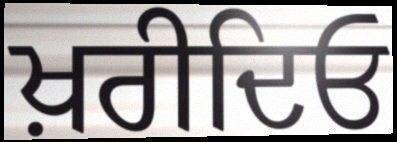
ਖ਼ਰੀਦਿਓ